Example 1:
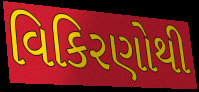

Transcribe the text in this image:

વિકિરણોથી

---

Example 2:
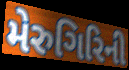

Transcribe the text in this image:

મેરુગિરિની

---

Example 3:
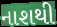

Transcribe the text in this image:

નાશથી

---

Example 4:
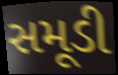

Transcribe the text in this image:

સમૂડી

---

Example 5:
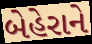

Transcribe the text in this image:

બેહેરાને